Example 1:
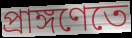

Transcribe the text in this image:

প্রাঙ্গণেতে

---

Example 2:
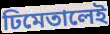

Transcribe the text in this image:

ঢিমেতালেই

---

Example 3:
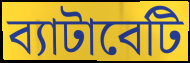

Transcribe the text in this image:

ব্যাটাবেটি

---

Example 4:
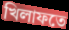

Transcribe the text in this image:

খিলাফতে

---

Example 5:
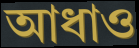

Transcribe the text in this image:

আধাও